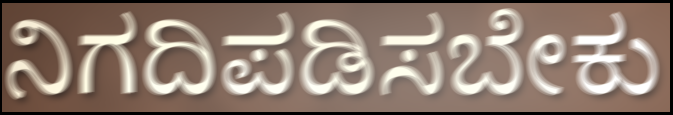
ನಿಗದಿಪಡಿಸಬೇಕು